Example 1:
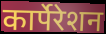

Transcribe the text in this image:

कार्पेरेशन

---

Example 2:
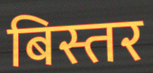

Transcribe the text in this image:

बिस्‍तर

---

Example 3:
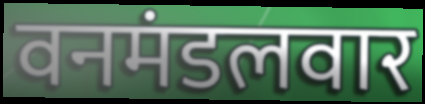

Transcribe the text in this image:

वनमंडलवार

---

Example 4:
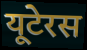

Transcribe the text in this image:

यूटेरस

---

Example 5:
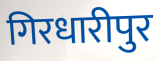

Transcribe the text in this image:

गिरधारीपुर